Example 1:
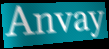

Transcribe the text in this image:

Anvay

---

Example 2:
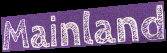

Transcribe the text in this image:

Mainland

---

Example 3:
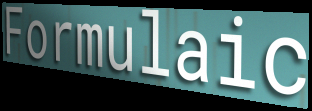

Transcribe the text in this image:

Formulaic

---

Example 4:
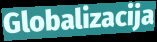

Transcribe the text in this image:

Globalizacija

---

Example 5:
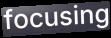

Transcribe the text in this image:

focusing